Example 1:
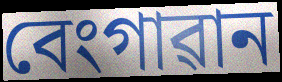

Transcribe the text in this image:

বেংগাৱান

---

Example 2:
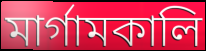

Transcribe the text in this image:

মাৰ্গামকালি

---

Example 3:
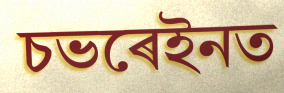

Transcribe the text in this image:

চভৰেইনত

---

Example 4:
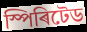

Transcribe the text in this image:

স্পিৰিটেড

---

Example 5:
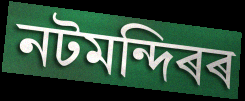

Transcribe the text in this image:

নটমন্দিৰৰ